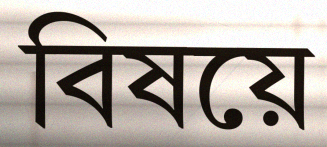
বিষয়ে